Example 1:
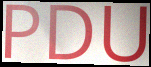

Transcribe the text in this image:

PDU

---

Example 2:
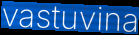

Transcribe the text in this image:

vastuvina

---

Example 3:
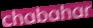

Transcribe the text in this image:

chabahar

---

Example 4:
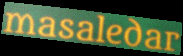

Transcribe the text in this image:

masaledar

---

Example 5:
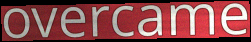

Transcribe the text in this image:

overcame